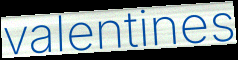
valentines